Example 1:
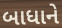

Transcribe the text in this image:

બાધાને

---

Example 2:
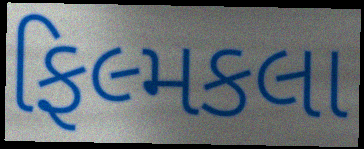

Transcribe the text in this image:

ફિલ્મકલા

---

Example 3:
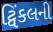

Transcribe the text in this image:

ટ્વિંકલની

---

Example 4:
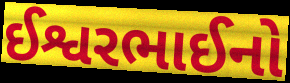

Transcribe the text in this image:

ઈશ્વરભાઈનો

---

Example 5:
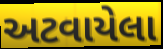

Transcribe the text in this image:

અટવાયેલા